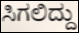
ಸಿಗಲಿದ್ದು